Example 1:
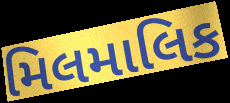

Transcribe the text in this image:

મિલમાલિક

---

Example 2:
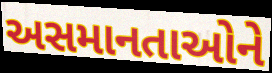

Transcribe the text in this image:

અસમાનતાઓને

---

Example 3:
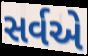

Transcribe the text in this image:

સર્વએ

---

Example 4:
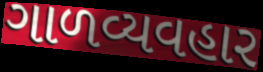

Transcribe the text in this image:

ગાળવ્યવહાર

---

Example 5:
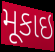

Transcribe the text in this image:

મૂકાઇ